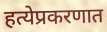
हत्येप्रकरणात